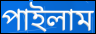
পাইলাম